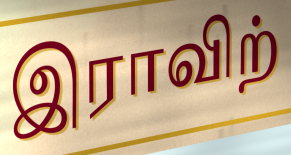
இராவிற்